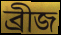
ব্ৰীজ